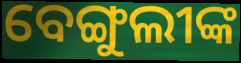
ବେଙ୍ଗୁଲୀଙ୍କ